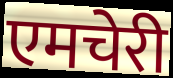
एमचेरी